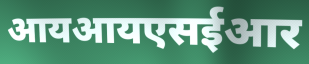
आयआयएसईआर